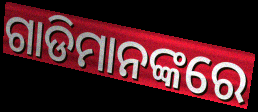
ଗାଡିମାନଙ୍କରେ